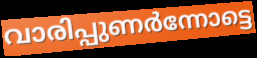
വാരിപ്പുണർന്നോട്ടെ